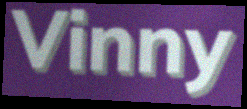
Vinny